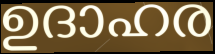
ഉദാഹര